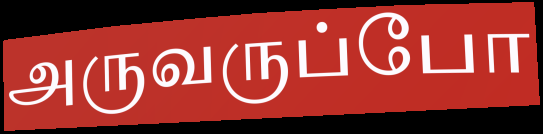
அருவருப்போ